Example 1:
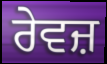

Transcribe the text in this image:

ਰੇਵਜ਼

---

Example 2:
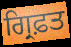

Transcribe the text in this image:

ਗ੍ਰਿਫ਼ਤ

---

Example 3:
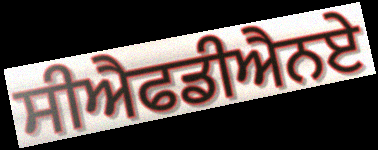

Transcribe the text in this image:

ਸੀਐਫਡੀਐਨਏ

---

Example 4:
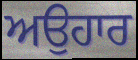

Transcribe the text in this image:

ਅਉਹਾਰ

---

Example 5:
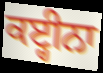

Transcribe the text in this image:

ਕੲ੍ਹੀਨਾ